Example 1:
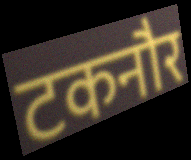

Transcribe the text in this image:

टकनौर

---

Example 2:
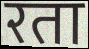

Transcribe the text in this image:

रता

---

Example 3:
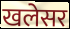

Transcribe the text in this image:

खलेसर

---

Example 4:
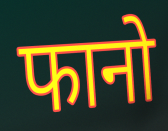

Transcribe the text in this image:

फानो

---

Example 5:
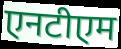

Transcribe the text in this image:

एनटीएम